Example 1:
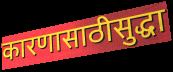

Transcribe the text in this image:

कारणासाठीसुद्धा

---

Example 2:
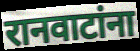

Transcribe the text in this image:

रानवाटांना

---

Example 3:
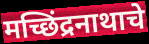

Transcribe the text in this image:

मच्छिंद्रनाथाचे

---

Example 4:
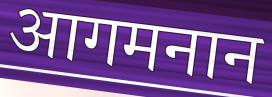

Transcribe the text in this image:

आगमनान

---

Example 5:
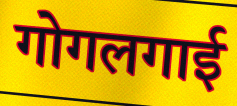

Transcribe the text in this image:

गोगलगाई